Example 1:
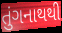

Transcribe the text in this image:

તુંગનાથથી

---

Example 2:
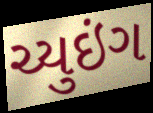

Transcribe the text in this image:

ચ્યુઇંગ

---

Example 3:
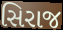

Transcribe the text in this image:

સિરાજ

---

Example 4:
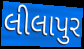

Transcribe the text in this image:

લીલાપુર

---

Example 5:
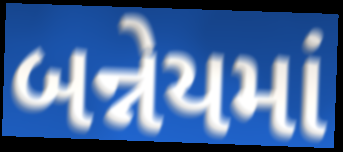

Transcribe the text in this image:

બન્નેયમાં